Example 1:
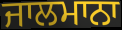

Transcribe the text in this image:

ਜਾਲਮਾਨਾ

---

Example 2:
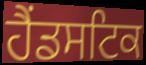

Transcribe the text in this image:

ਹੈਂਡਸਟਿਕ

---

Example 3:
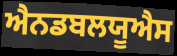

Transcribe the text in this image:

ਐਨਡਬਲਯੂਐਸ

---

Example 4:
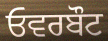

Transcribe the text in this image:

ਓਵਰਬੌਟ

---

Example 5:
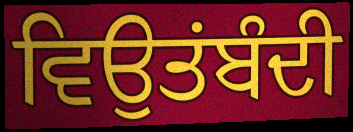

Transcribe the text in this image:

ਵਿਉਤਂਬੰਦੀ